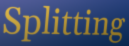
Splitting